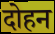
दोहन